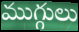
ముగ్గులు